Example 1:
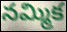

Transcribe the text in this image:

నమ్మిక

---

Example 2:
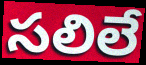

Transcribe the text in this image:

సలిలే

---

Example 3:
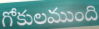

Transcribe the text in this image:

గోకులముంది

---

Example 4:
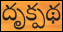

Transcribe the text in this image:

దృక్పథ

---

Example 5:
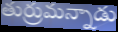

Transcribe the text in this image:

తుర్రుమన్నాడు